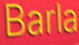
Barla